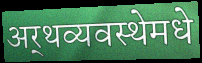
अर्थव्यवस्थेमधे